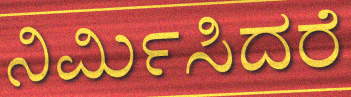
ನಿರ್ಮಿಸಿದರೆ